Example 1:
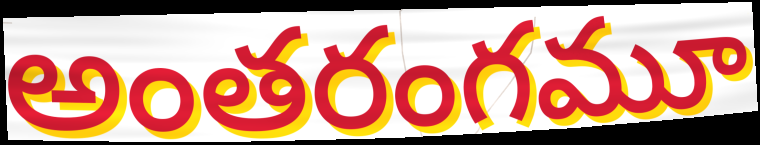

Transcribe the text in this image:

అంతరంగమూ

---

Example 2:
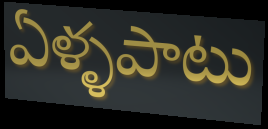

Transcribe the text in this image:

ఏళ్ళపాటు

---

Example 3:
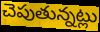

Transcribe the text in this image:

చెపుతున్నట్లు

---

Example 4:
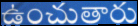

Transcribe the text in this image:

ఉంచుతారు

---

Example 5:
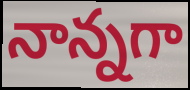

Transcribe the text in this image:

నాన్నగా